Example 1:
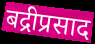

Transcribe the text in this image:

बद्रीप्रसाद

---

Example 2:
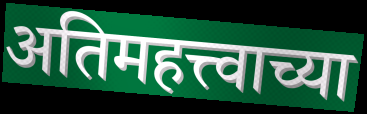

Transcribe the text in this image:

अतिमहत्त्वाच्या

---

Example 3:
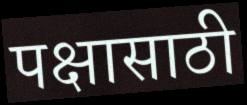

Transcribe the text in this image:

पक्षासाठी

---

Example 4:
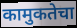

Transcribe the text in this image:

कामुकतेचा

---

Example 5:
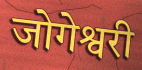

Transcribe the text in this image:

जोगेश्वरी